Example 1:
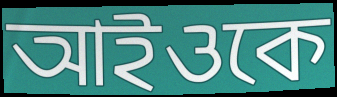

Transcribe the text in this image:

আইওকে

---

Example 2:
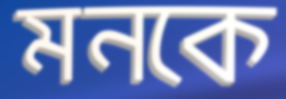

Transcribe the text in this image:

মনকে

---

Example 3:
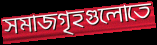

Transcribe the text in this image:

সমাজগৃহগুলোতে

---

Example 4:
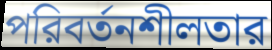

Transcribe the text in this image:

পরিবর্তনশীলতার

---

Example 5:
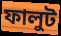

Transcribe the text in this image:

ফালুট